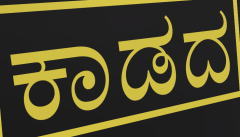
ಕಾಡದ